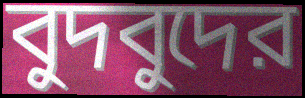
বুদবুদের